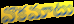
వొకమాటు